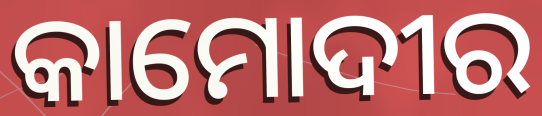
କାମୋଦୀର